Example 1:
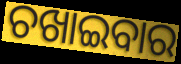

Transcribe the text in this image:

ଚଖାଇବାର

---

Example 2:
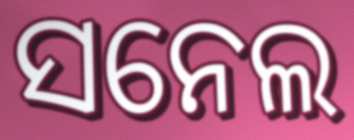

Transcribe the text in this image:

ସନେଲ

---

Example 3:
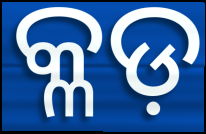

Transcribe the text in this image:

କ୍ଳଡ଼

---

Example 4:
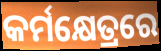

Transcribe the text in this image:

କର୍ମକ୍ଷେତ୍ରରେ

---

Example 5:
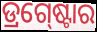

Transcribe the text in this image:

ଡ୍ରଗ୍‍ଷ୍ଟୋର